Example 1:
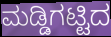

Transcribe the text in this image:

ಮಡ್ಡಿಗಟ್ಟಿದ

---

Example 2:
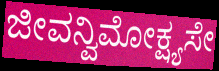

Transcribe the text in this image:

ಜೀವನ್ವಿಮೋಕ್ಷ್ಯಸೇ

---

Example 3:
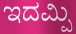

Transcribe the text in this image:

ಇದಮ್ಪಿ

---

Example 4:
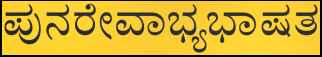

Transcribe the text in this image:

ಪುನರೇವಾಭ್ಯಭಾಷತ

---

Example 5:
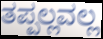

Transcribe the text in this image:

ತಪ್ಪಲ್ಲವಲ್ಲ